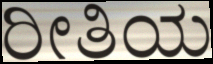
ರೀತಿಯ